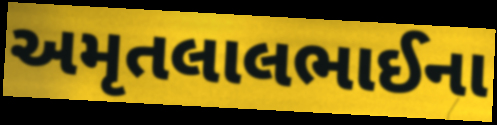
અમૃતલાલભાઈના